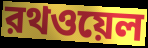
রথওয়েল